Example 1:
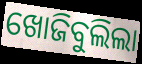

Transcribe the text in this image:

ଖୋଜିବୁଲିଲା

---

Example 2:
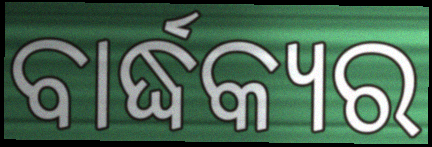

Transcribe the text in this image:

ବାର୍ଦ୍ଧକ୍ୟର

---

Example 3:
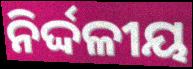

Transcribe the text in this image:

ନିର୍ଦ୍ଦଳୀୟ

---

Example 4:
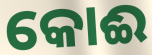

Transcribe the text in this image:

କୋଈ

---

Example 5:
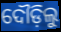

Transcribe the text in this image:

ଦୌଡ଼ିଲୁ